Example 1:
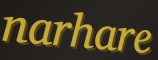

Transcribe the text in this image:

narhare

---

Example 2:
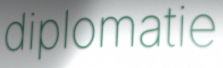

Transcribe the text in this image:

diplomatie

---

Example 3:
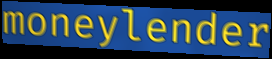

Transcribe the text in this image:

moneylender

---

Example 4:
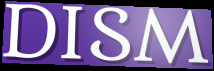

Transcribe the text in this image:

DISM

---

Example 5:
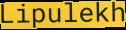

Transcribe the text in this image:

Lipulekh